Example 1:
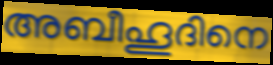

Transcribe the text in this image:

അബീഹൂദിനെ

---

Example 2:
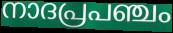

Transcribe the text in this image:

നാദപ്രപഞ്ചം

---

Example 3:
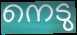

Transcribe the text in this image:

നെടു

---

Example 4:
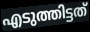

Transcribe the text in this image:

എടുത്തിട്ടത്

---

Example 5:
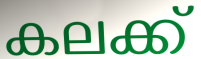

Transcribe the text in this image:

കലക്ക്